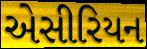
એસીરિયન